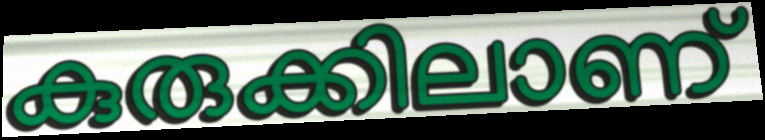
കുരുക്കിലാണ്